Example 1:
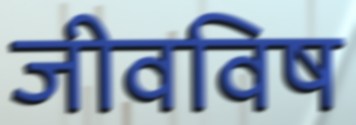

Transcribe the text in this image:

जीवविष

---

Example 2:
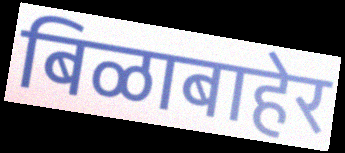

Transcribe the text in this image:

बिळाबाहेर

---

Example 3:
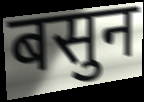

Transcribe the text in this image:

बसुन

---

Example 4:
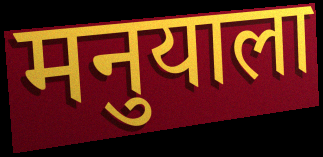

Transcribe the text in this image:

मनुयाला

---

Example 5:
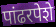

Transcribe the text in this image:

पांढरपेशे